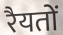
रैयतों